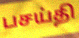
பசய்தி